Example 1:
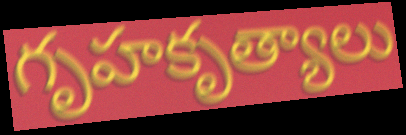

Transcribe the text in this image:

గృహకృత్యాలు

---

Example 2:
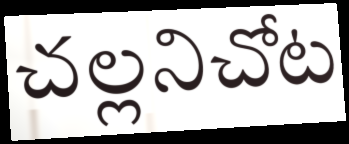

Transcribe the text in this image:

చల్లనిచోట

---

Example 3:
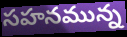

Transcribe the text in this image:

సహనమున్న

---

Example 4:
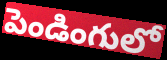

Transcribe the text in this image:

పెండింగులో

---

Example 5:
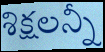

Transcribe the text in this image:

శిక్షలన్నీ